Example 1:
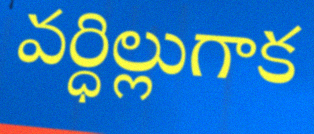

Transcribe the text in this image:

వర్ధిల్లుగాక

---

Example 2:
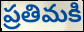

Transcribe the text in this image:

ప్రతిమకి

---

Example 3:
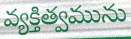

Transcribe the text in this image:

వ్యక్తిత్వమును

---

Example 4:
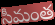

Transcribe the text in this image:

సీమంత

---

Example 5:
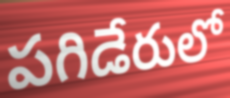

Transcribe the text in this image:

పగిడేరులో